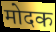
मोदक